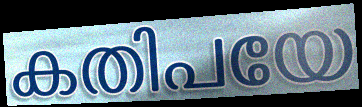
കതിപയേ